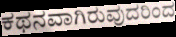
ಕಥನವಾಗಿರುವುದರಿಂದ